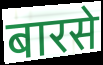
बारसे